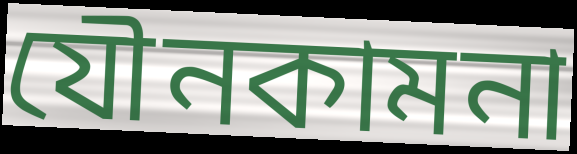
যৌনকামনা